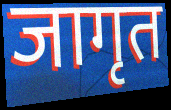
जागृत